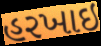
હરખાઇ